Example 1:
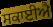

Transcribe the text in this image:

ਸਕਾਈਐ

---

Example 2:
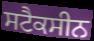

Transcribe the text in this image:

ਸਟੈਕਸੀਨ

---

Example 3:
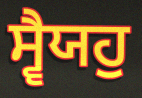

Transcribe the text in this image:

ਸ੍ਵੈਯਹੁ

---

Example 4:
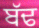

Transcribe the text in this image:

ਬੱਢ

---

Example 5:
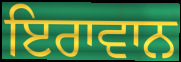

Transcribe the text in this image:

ਇਰਾਵਾਨ